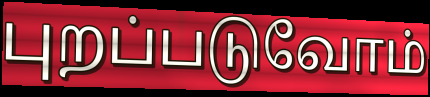
புறப்படுவோம்